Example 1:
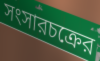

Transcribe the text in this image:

সংসারচক্রের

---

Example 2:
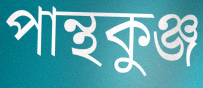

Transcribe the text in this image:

পান্থকুঞ্জ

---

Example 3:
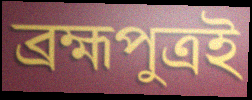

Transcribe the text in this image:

ব্রহ্মপুত্রই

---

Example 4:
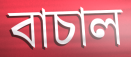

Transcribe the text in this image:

বাচাল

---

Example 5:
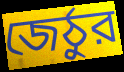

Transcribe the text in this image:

জেঠুর